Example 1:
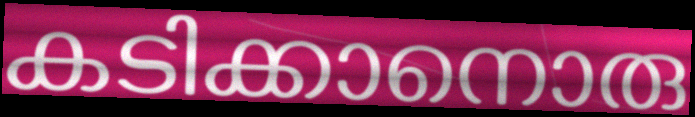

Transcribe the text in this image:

കടിക്കാനൊരു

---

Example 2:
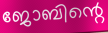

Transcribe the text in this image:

ജോബിന്റെ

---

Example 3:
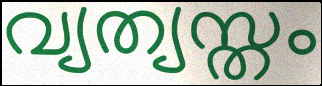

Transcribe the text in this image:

വ്യത്യസ്തം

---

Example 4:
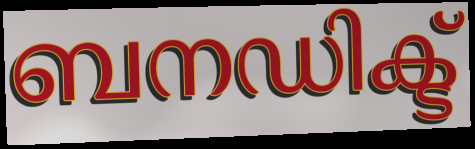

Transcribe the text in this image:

ബനഡിക്ട്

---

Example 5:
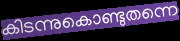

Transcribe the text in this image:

കിടന്നുകൊണ്ടുതന്നെ